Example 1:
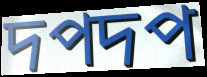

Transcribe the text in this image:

দপদপ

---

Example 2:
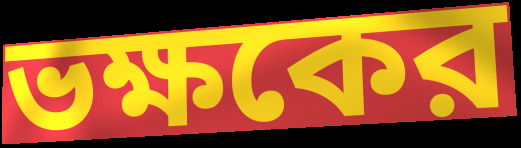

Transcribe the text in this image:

ভক্ষকের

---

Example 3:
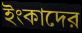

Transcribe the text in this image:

ইংকাদের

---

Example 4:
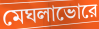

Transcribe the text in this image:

মেঘলাভোরে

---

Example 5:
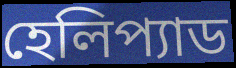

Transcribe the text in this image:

হেলিপ্যাড